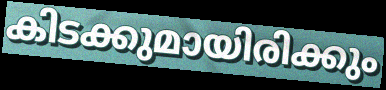
കിടക്കുമായിരിക്കും